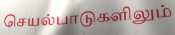
செயல்பாடுகளிலும்